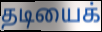
தடியைக்